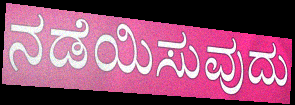
ನಡೆಯಿಸುವುದು